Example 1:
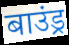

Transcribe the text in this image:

बाउंड्र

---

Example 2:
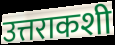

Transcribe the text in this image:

उत्तराकशी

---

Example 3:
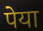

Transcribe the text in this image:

पेया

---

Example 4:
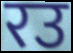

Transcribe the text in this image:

रउ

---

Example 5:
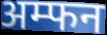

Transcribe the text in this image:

अम्फन